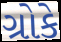
ગ્રોકે